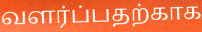
வளர்ப்பதற்காக